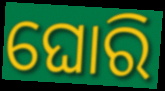
ଘୋରି